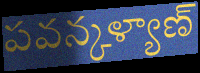
పవన్కళ్యాణ్